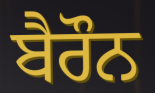
ਬੈਰੌਨ